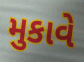
મુકાવે